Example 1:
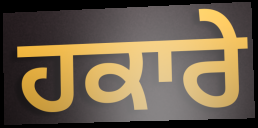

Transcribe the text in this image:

ਹਕਾਰੇ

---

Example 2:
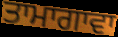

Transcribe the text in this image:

ਤਾਮਾਗਾਵਾ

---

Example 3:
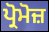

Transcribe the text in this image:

ਪ੍ਰੋਮੋਜ਼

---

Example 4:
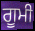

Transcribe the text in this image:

ਗੂਮੀ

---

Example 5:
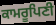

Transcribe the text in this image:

ਕਾਮਰੂਪਿਣੀ